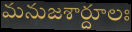
మనుజశార్దూలః